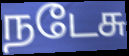
நடேசு